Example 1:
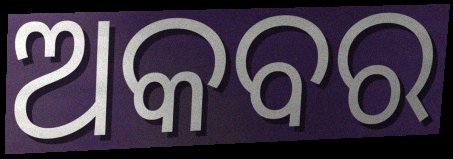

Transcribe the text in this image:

ଅକବର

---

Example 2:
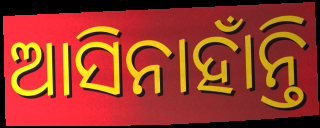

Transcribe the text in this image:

ଆସିନାହାଁନ୍ତି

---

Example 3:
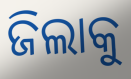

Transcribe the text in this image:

ଜିଲାକୁ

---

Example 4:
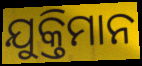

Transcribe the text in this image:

ଯୁକ୍ତିମାନ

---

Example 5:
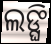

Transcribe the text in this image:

ଲଙ୍ଘି